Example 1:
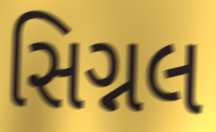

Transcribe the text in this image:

સિગ્નલ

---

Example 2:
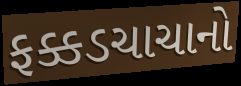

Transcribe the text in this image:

ફક્કડચાચાનો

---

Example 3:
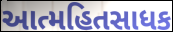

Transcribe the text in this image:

આત્મહિતસાધક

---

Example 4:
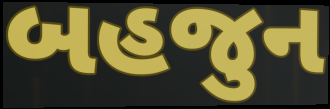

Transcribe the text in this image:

બહજુન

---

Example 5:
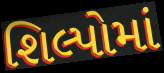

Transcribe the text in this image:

શિલ્પોમાં